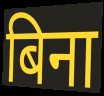
बिना